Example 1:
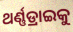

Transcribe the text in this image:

ଥର୍ଣ୍ଣଡ୍ରାଇକୁ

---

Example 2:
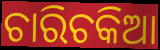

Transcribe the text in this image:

ଚାରିଚକିଆ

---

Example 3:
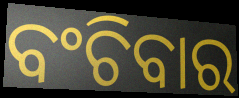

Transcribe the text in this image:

ବଂଚିବାର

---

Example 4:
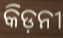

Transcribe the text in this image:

କିଡ଼ନୀ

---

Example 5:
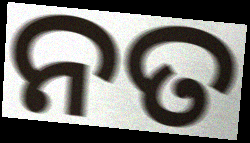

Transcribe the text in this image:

ନତ